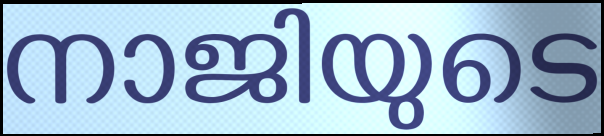
നാജിയുടെ